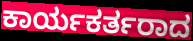
ಕಾರ್ಯಕರ್ತರಾದ